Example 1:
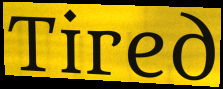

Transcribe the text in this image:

Tired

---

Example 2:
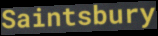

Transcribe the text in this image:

Saintsbury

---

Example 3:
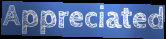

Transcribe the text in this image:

Appreciated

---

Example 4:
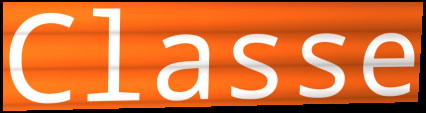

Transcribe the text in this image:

Classe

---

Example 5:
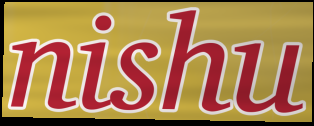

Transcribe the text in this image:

nishu